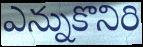
ఎన్నుకొనిరి